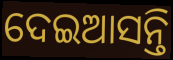
ଦେଇଆସନ୍ତି